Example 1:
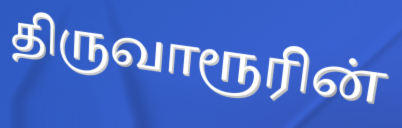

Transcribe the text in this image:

திருவாரூரின்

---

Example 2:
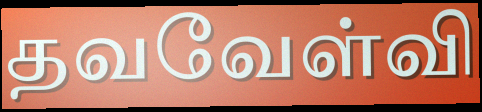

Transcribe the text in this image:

தவவேள்வி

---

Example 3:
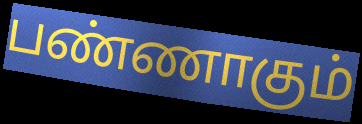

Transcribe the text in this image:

பண்ணாகும்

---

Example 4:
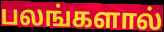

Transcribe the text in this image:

பலங்களால்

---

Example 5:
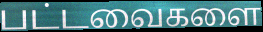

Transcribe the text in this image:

பட்டவைகளை